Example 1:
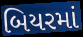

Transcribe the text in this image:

બિયરમાં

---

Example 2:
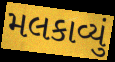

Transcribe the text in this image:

મલકાવ્યું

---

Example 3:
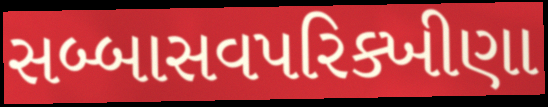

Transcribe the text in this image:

સબ્બાસવપરિક્ખીણા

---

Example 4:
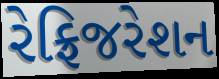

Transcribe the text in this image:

રેફ્રિજરેશન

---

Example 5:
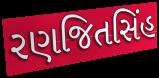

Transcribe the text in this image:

રણજિતસિંહ